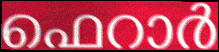
ഫെറാർ